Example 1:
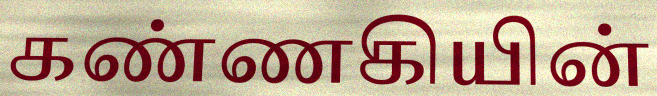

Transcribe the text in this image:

கண்ணகியின்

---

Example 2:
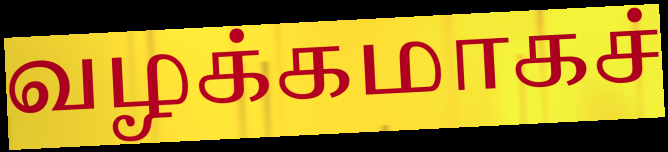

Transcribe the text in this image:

வழக்கமாகச்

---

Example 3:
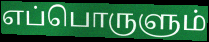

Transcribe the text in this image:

எப்பொருளும்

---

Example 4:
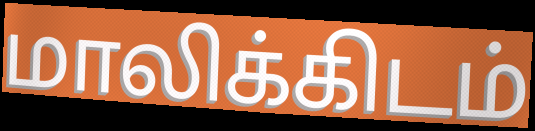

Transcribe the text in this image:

மாலிக்கிடம்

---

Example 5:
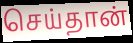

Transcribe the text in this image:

செய்தான்